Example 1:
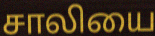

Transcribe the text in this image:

சாலியை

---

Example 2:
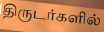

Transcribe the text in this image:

திருடர்களில்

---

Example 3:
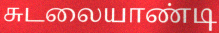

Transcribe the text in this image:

சுடலையாண்டி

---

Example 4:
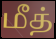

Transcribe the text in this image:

மீத்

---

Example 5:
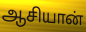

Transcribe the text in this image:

ஆசியான்